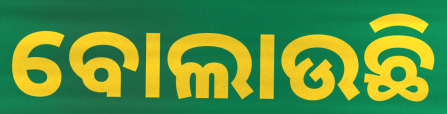
ବୋଲାଉଛି